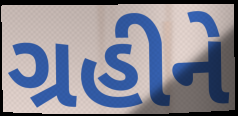
ગ્રહીને